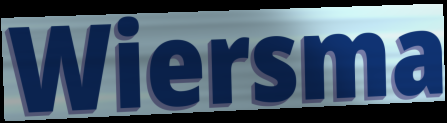
Wiersma